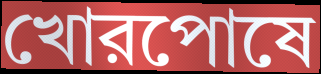
খোরপোষে